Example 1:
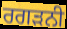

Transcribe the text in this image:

ਰਗੜਨੀ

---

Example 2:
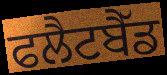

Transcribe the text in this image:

ਫਲੈਟਬੈੱਡ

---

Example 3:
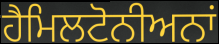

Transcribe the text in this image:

ਹੈਮਿਲਟੋਨੀਅਨਾਂ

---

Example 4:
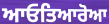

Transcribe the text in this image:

ਆਓਤਿਆਰੋਆ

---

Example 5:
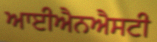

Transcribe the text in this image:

ਆਈਐਨਐਸਟੀ